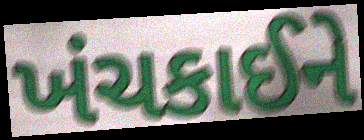
ખંચકાઈને